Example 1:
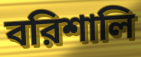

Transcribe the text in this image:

বরিশালি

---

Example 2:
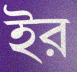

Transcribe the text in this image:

ইর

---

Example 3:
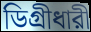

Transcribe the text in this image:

ডিগ্রীধারী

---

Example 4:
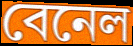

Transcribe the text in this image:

বেনেল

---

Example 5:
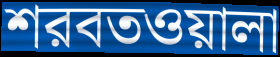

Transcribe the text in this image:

শরবতওয়ালা